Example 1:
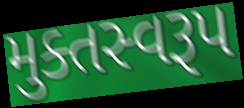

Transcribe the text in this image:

મુક્તસ્વરૂપ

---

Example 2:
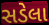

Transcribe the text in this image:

સડેલા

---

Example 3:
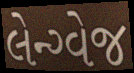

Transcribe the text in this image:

લેન્ગ્વેજ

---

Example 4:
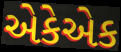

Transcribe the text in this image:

એકેએક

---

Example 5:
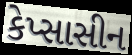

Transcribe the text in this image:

કેપ્સાસીન